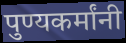
पुण्यकर्मांनी